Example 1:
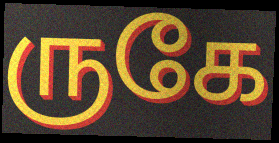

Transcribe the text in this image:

ருகே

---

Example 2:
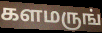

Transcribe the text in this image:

களமருங்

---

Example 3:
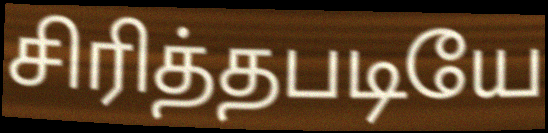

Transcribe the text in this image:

சிரித்தபடியே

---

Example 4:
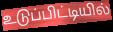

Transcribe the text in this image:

உடுப்பிட்டியில்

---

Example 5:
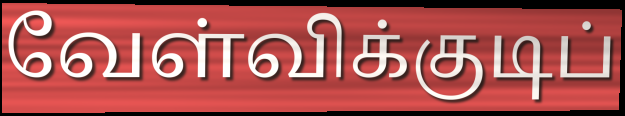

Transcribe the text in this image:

வேள்விக்குடிப்